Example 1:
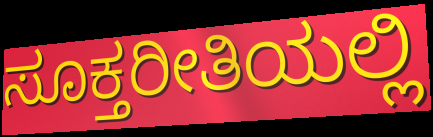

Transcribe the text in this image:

ಸೂಕ್ತರೀತಿಯಲ್ಲಿ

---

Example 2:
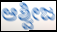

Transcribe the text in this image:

ಆಶ್ವೀಜ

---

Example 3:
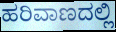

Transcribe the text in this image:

ಹರಿವಾಣದಲ್ಲಿ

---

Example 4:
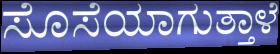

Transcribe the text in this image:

ಸೊಸೆಯಾಗುತ್ತಾಳೆ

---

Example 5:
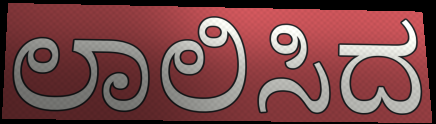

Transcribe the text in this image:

ಲಾಲಿಸಿದ